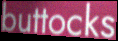
buttocks